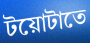
টয়োটাতে